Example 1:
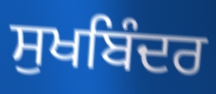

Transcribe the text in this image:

ਸੁਖਬਿੰਦਰ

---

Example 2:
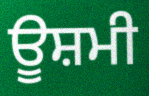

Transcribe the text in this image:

ਊਸ਼ਮੀ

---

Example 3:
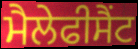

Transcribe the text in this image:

ਮੈਲੇਫੀਸੈਂਟ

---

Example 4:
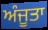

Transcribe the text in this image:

ਅੰਜੂਤਾ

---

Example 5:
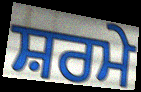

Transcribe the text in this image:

ਸ਼ਰਮੇ